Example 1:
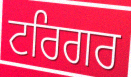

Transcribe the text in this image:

ਟਰਿਗਰ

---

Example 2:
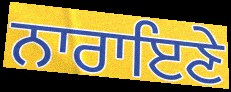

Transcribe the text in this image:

ਨਾਰਾਇਣੇ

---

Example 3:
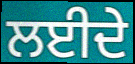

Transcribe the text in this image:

ਲਈਦੇ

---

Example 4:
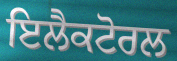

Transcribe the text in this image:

ਇਲੈਕਟੋਰਲ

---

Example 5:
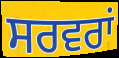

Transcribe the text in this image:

ਸਰਵਰਾਂ